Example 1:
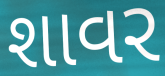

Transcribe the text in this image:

શાવર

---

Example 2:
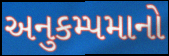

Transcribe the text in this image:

અનુકમ્પમાનો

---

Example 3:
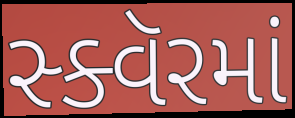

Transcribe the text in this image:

સ્ક્વૅરમાં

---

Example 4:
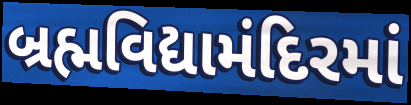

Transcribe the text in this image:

બ્રહ્મવિદ્યામંદિરમાં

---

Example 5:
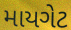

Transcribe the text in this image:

માયગેટ